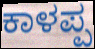
ಕಾಳಪ್ಪ